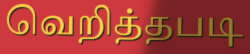
வெறித்தபடி